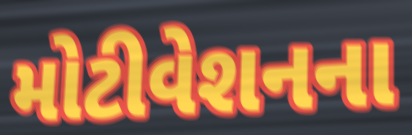
મોટીવેશનના